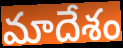
మాదేశం